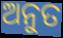
ଅନୁତ